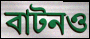
বাটনও